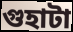
গুহাটা